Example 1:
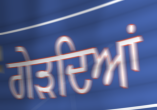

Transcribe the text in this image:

ਗੇੜਦਿਆਂ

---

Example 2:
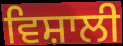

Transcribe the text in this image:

ਵਿਸ਼ਾਲੀ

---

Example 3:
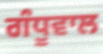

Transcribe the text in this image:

ਗੰਧੂਵਾਲ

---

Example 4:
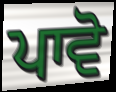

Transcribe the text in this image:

ਪਾਵੋ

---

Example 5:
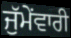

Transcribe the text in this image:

ਜੁੱਮੇਂਵਾਰੀ